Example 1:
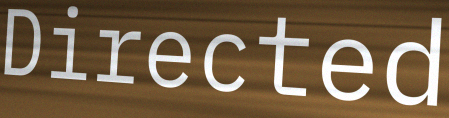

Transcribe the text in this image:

Directed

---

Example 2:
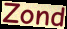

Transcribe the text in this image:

Zond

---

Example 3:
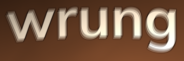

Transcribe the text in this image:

wrung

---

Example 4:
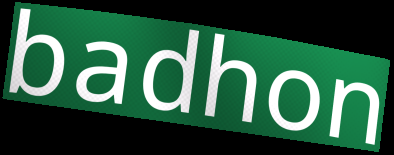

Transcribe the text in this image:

badhon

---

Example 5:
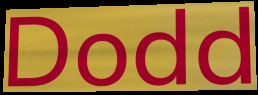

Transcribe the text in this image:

Dodd